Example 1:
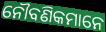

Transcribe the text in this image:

ନୌବଣିକମାନେ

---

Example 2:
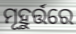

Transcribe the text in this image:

ମୂହୁର୍ତ୍ତରେ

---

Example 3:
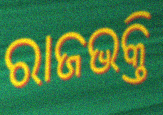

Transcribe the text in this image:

ରାଜଭକ୍ତି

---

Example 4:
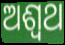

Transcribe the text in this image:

ଅଶ୍ବଥ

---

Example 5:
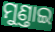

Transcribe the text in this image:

ମୁଣ୍ତାଇ